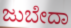
ಜುಬೇದಾ